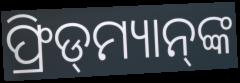
ଫ୍ରିଡ୍‌ମ୍ୟାନ୍‌ଙ୍କ